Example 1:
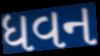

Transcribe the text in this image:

ધવન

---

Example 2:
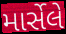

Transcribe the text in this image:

માર્સેલે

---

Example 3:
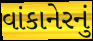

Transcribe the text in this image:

વાંકાનેરનું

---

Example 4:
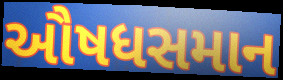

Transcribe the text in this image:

ઔષધસમાન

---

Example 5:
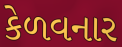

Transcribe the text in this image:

કેળવનાર